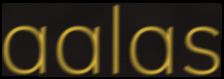
aalas